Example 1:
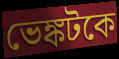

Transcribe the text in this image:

ভেঙ্কটকে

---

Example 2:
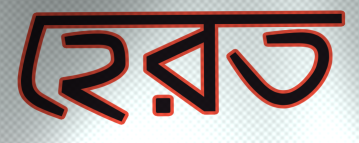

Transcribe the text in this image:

হেরত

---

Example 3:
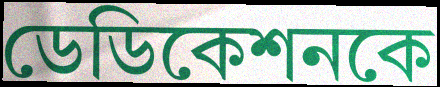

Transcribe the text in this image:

ডেডিকেশনকে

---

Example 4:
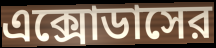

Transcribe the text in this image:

এক্সোডাসের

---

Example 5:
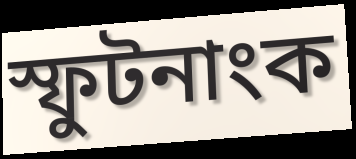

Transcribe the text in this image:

স্ফুটনাংক